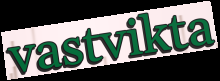
vastvikta